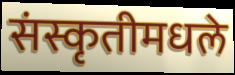
संस्कृतीमधले